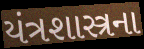
યંત્રશાસ્ત્રના